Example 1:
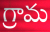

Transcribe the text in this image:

గ్రామ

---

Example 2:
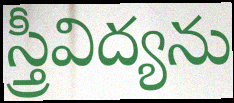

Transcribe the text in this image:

స్త్రీవిద్యను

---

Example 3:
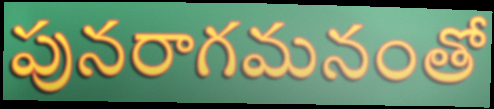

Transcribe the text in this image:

పునరాగమనంతో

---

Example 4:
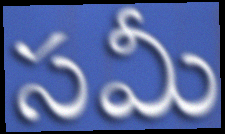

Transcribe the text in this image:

సమీ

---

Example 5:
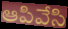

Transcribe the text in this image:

ఆపివేసి